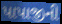
પાપાજીની